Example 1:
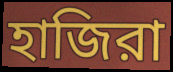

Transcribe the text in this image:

হাজিরা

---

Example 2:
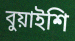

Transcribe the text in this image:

বুয়াইশি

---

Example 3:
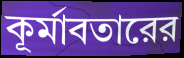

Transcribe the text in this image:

কূর্মাবতারের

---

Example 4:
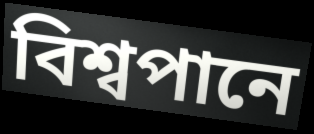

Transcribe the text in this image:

বিশ্বপানে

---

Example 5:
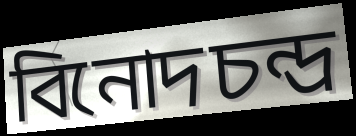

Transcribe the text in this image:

বিনোদচন্দ্র